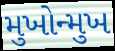
મુખોન્મુખ